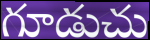
గూడుచు